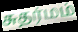
சுதர்மம்